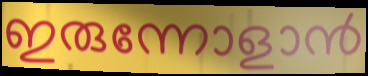
ഇരുന്നോളാൻ